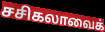
சசிகலாவைக்